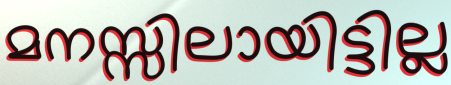
മനസ്സിലായിട്ടില്ല